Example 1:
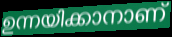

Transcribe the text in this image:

ഉന്നയിക്കാനാണ്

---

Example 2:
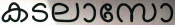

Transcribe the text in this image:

കടലാസോ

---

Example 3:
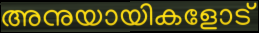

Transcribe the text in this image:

അനുയായികളോട്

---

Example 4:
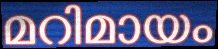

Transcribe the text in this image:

മറിമായം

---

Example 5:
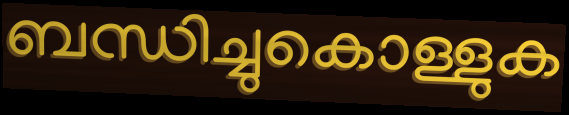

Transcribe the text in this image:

ബന്ധിച്ചുകൊള്ളുക